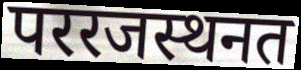
पररजस्थनत